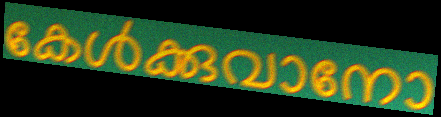
കേൾക്കുവാനോ